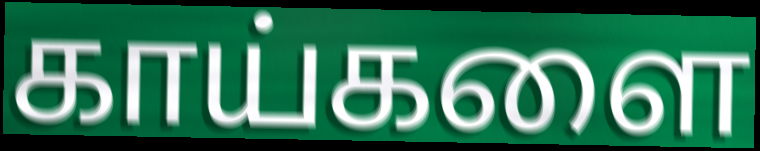
காய்களை